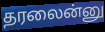
தரலைன்னு